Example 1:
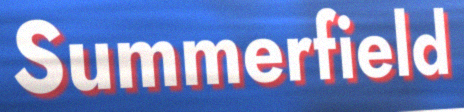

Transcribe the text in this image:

Summerfield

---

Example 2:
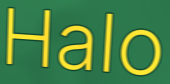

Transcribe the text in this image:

Halo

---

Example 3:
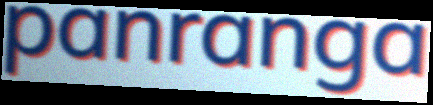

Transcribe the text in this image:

panranga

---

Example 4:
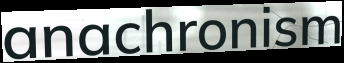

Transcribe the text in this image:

anachronism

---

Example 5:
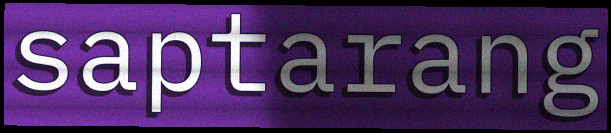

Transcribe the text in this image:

saptarang